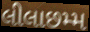
લીલાછમ્મ